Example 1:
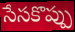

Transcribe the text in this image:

సేసకొప్పు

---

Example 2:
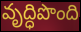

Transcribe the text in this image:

వృద్ధిపొంది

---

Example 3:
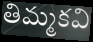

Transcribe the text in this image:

తిమ్మకవి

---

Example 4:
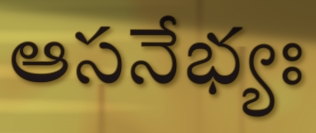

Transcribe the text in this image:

ఆసనేభ్యః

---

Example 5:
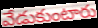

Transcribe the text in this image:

వేడుకుంటారు